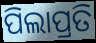
ପିଲାପ୍ରତି